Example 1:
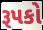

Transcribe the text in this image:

રૂપકો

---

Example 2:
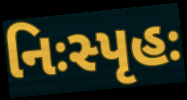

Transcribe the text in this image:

નિઃસ્પૃહઃ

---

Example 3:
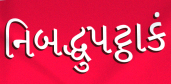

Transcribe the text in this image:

નિબદ્ધુપટ્ઠાકં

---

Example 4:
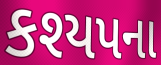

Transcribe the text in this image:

કશ્યપના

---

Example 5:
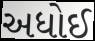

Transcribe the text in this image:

અધોઈ